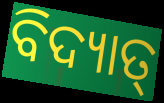
ବିଦ୍ୟାତ୍